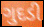
ગુદડી